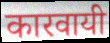
कारवायी